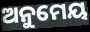
ଅନୁମେୟ